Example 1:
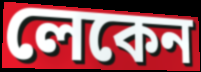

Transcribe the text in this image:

লেকেন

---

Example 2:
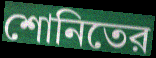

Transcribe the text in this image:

শোনিতের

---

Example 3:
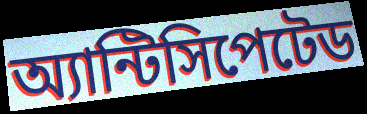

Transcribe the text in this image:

অ্যান্টিসিপেটেড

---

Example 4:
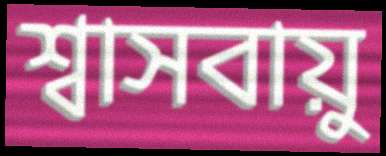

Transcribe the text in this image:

শ্বাসবায়ু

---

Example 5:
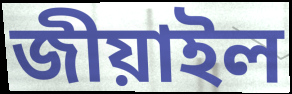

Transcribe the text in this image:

জীয়াইল